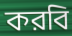
করবি